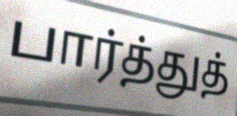
பார்த்துத்